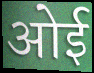
ओई